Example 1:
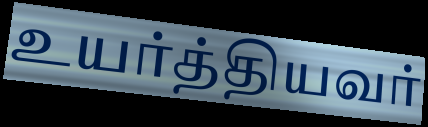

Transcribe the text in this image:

உயர்த்தியவர்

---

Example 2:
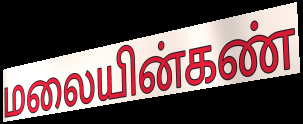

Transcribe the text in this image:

மலையின்கண்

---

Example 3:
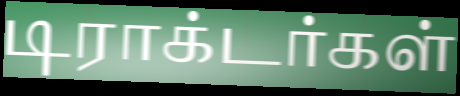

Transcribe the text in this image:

டிராக்டர்கள்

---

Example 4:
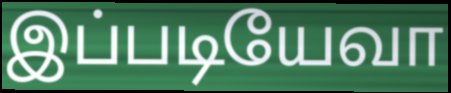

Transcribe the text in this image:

இப்படியேவா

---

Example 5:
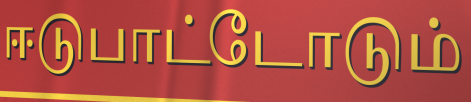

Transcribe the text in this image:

ஈடுபாட்டோடும்